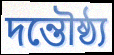
দন্তৌষ্ঠ্য